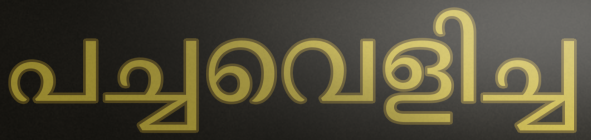
പച്ചവെളിച്ച